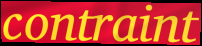
contraint